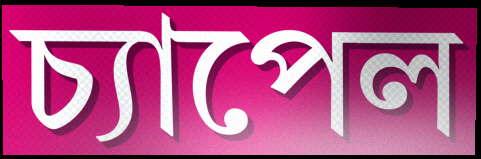
চ্যাপেল